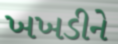
ખખડીને